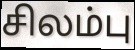
சிலம்பு